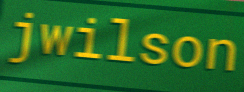
jwilson